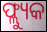
ଫ୍ଲ୍ୟୁକ